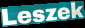
Leszek